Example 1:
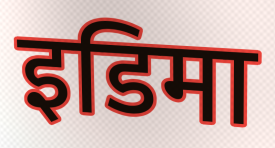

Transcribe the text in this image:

इडिमा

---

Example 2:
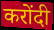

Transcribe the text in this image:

करोंदी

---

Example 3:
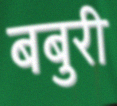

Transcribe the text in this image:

बबुरी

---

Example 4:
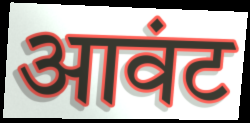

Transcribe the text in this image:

आवंट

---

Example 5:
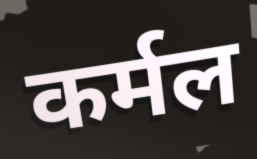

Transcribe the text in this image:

कर्मल